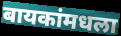
बायकांमधला